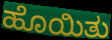
ಹೊಯಿತು